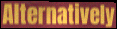
Alternatively